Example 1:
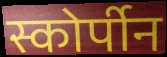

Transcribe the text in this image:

स्कोर्पीन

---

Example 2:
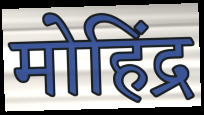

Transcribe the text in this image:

मोहिंद्र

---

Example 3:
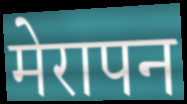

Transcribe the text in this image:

मेरापन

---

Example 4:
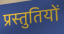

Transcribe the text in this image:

प्रस्तुतियों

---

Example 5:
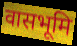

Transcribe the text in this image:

वासभूमि